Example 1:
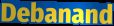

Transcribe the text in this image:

Debanand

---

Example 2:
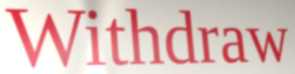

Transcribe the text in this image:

Withdraw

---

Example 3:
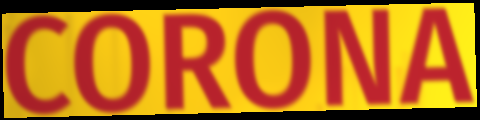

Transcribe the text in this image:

CORONA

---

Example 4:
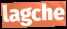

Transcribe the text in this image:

lagche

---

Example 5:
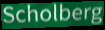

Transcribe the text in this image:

Scholberg